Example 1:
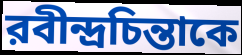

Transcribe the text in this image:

রবীন্দ্রচিন্তাকে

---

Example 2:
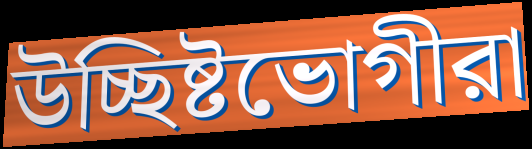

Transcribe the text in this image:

উচ্ছিষ্টভোগীরা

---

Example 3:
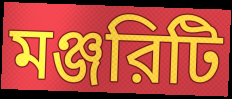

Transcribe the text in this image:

মঞ্জরিটি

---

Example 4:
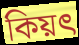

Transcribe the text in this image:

কিয়ৎ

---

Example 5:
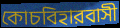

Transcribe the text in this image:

কোচবিহারবাসী